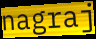
nagraj